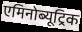
एमिनोब्यूट्रिक